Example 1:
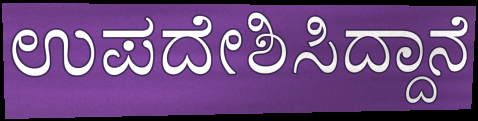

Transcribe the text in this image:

ಉಪದೇಶಿಸಿದ್ದಾನೆ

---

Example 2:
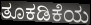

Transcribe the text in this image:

ತೂಕಡಿಕೆಯ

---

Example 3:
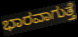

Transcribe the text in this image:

ಭಾರವಾಗುತ್ತೆ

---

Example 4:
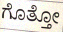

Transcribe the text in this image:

ಗೊತ್ತೋ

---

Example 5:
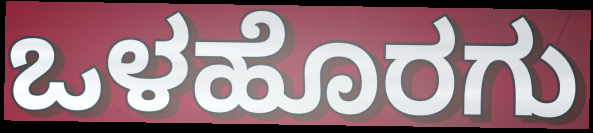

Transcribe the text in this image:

ಒಳಹೊರಗು